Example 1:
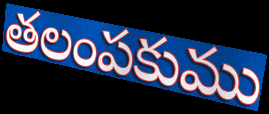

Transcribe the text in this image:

తలంపకుము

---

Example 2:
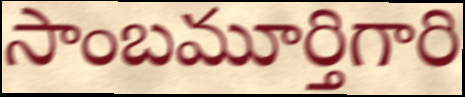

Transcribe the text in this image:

సాంబమూర్తిగారి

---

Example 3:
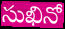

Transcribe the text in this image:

సుఖినో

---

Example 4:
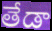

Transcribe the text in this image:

తేడా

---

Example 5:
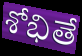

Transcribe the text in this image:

శోభితే